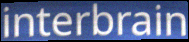
interbrain